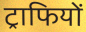
ट्राफियों